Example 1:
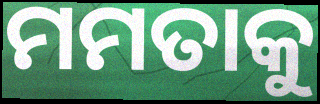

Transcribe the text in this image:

ମମତାକୁ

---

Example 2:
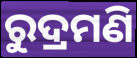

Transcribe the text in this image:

ରୁଦ୍ରମଣି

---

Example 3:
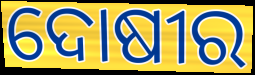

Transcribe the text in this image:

ଦୋଷୀର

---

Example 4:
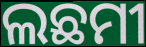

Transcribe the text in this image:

ଲଛମୀ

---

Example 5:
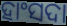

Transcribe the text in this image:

ହାଂସଦା